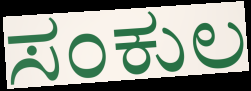
ಸಂಕುಲ